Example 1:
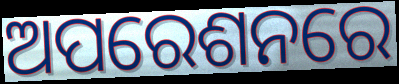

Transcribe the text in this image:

ଅପରେଶନରେ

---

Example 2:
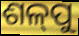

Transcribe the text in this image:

ଶଳ୍‍ପୁ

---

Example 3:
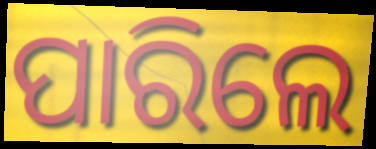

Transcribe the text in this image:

ପାରିଲେ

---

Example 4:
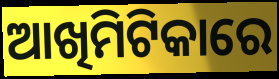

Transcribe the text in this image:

ଆଖିମିଟିକାରେ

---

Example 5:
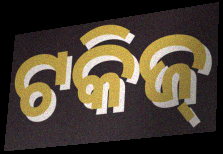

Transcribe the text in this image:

ଟକିଜ୍